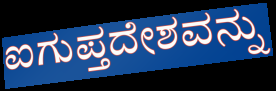
ಐಗುಪ್ತದೇಶವನ್ನು